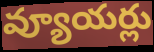
వ్యూయర్లు